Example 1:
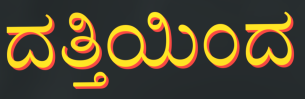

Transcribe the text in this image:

ದತ್ತಿಯಿಂದ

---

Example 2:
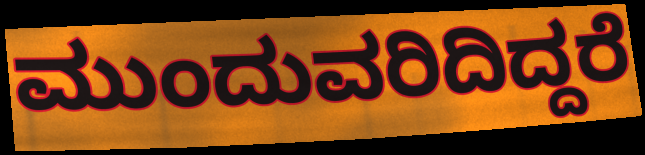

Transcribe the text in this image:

ಮುಂದುವರಿದಿದ್ದರೆ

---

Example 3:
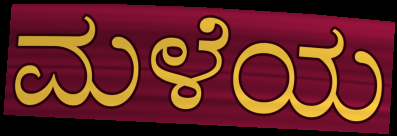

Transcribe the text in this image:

ಮಳೆಯ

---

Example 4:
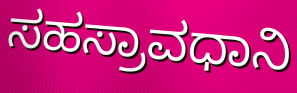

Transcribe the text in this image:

ಸಹಸ್ರಾವಧಾನಿ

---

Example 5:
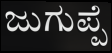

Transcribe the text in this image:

ಜುಗುಪ್ಪೆ